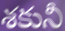
శకునీ